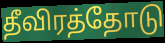
தீவிரத்தோடு